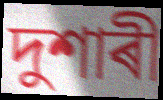
দুশাৰী